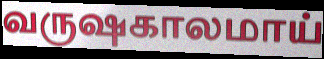
வருஷகாலமாய்